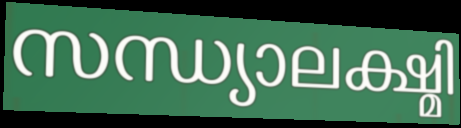
സന്ധ്യാലക്ഷ്മി